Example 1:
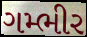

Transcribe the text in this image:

ગમ્ભીર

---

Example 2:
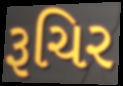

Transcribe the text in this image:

રૂચિર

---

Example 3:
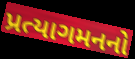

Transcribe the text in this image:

પ્રત્યાગમનનો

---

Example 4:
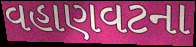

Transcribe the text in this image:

વહાણવટના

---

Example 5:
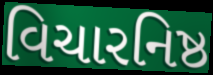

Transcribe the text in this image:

વિચારનિષ્ઠ